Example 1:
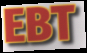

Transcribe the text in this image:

EBT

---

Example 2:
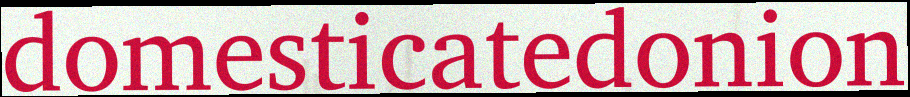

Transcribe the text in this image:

domesticatedonion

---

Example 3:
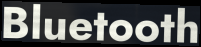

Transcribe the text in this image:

Bluetooth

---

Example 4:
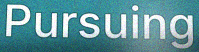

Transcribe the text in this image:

Pursuing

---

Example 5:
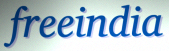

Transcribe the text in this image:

freeindia